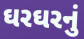
ઘરઘરનું